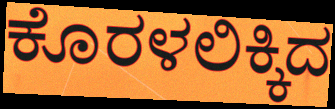
ಕೊರಳಲಿಕ್ಕಿದ